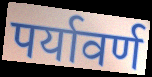
पर्यावर्ण